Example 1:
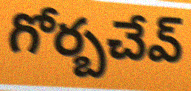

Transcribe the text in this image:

గోర్బచేవ్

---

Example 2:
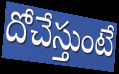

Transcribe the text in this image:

దోచేస్తుంటే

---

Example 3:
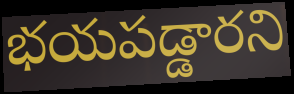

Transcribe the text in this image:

భయపడ్డారని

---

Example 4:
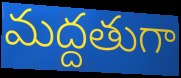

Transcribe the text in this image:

మద్దతుగా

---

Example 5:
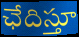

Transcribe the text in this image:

ఛేదిస్తూ